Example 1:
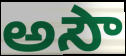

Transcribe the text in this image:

అసౌ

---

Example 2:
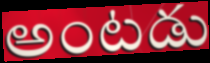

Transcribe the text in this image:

అంటడు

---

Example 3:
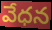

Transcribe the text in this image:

వేధన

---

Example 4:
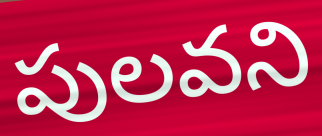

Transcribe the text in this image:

పులవని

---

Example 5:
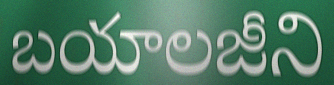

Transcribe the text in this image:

బయాలజీని